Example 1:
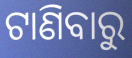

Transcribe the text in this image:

ଟାଣିବାରୁ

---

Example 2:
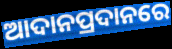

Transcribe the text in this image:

ଆଦାନପ୍ରଦାନରେ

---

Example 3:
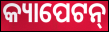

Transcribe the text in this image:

କ୍ୟାପେଟନ୍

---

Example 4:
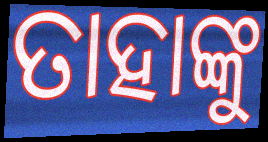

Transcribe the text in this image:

ତାହାଙ୍କୁ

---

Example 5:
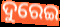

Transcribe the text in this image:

ଦୁରେଇ